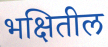
भक्षितील